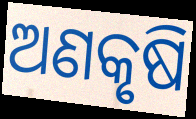
ଅଣକୃଷି